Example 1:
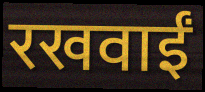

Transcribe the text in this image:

रखवाईं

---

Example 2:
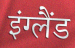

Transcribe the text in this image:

इंग्लैंड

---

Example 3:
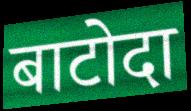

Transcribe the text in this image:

बाटोदा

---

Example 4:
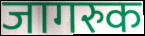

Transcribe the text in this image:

जागरुक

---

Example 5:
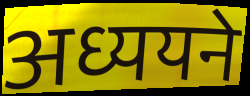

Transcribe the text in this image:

अध्ययने